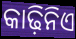
କାଢ଼ିନିଏ